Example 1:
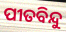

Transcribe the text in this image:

ପୀତବିନ୍ଦୁ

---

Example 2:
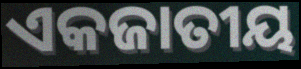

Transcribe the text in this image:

ଏକଜାତୀୟ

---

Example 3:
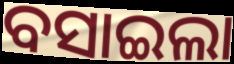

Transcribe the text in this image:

ବସାଇଲା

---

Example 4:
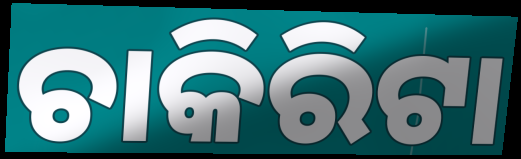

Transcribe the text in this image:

ଚାକିରିଟା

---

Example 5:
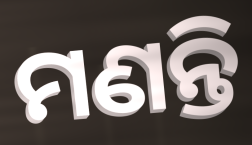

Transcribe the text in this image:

ମଣନ୍ତି